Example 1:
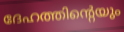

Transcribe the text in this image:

ദേഹത്തിന്റെയും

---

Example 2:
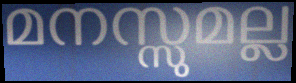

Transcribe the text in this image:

മനസ്സുമല്ല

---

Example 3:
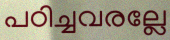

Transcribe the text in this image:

പഠിച്ചവരല്ലേ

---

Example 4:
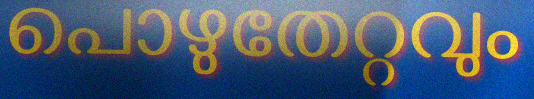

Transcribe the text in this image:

പൊഴുതേറ്റവും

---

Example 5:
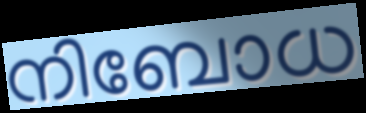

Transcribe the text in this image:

നിബോധ